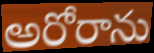
అరోరాను